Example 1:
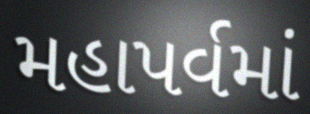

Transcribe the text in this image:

મહાપર્વમાં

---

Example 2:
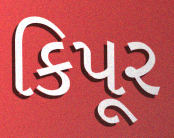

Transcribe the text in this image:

કિપૂર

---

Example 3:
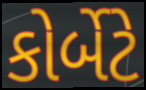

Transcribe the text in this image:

કોર્બેટે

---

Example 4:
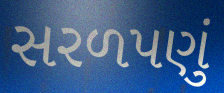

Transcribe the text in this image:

સરળપણું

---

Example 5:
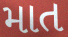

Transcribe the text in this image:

માત